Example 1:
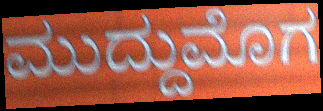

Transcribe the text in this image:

ಮುದ್ದುಮೊಗ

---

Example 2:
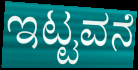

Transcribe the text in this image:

ಇಟ್ಟವನೆ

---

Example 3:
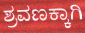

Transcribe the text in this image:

ಶ್ರವಣಕ್ಕಾಗಿ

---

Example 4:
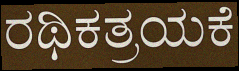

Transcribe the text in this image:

ರಥಿಕತ್ರಯಕೆ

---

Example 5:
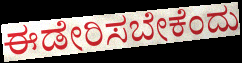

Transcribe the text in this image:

ಈಡೇರಿಸಬೇಕೆಂದು